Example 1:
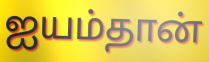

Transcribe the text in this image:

ஐயம்தான்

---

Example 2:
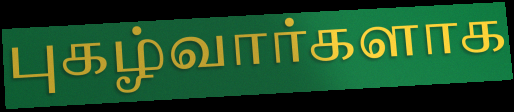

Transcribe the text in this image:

புகழ்வார்களாக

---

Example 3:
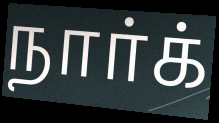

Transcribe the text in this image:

நார்க்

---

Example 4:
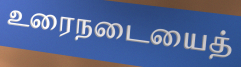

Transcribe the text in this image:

உரைநடையைத்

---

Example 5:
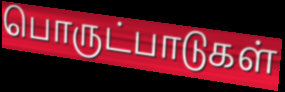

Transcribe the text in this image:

பொருட்பாடுகள்